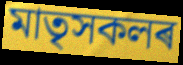
মাতৃসকলৰ